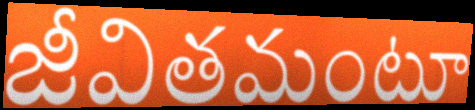
జీవితమంటూ